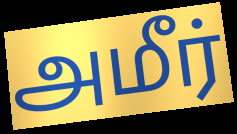
அமீர்